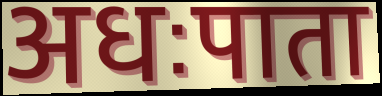
अधःपाता